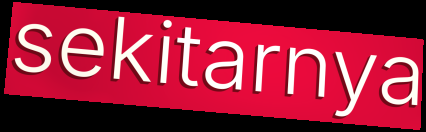
sekitarnya